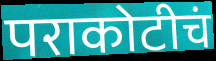
पराकोटीचं